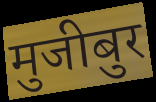
मुजीबुर